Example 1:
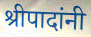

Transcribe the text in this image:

श्रीपादांनी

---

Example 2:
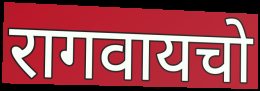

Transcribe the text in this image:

रागवायचो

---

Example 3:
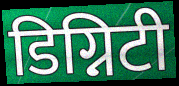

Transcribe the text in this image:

डिग्निटी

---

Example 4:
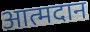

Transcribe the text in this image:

आत्मदान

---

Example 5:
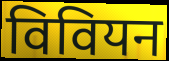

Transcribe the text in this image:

विवियन